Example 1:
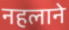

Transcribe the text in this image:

नहलाने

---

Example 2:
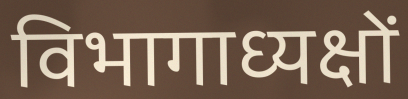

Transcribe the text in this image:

विभागाध्‍यक्षों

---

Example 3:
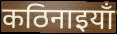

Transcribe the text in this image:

कठिनाइयाँ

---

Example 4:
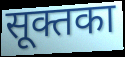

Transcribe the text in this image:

सूक्तका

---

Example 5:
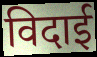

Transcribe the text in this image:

विदाई